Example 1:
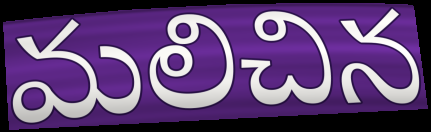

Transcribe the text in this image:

మలిచిన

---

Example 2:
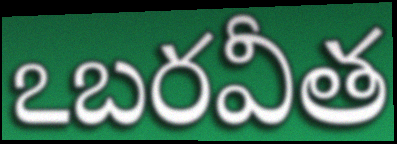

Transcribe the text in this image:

ఽబరవీత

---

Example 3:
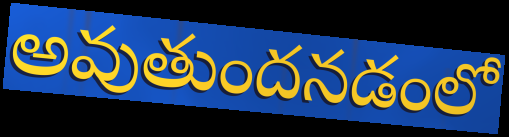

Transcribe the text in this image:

అవుతుందనడంలో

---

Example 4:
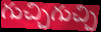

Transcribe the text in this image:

గుచ్చిగుచ్చి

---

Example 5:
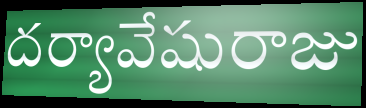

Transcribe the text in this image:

దర్యావేషురాజు